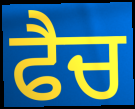
ਫੈਚ